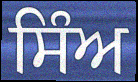
ਸਿੰਅ